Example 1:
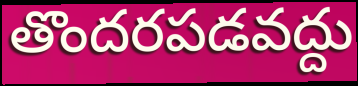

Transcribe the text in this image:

తొందరపడవద్దు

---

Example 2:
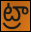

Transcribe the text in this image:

ట్రా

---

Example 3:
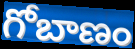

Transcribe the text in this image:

గోబాణం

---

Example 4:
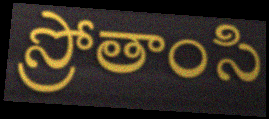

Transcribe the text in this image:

స్రోతాంసి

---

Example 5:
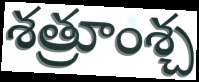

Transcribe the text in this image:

శత్రూంశ్చ